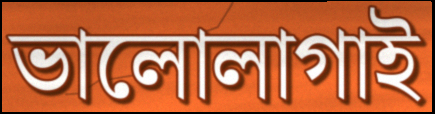
ভালোলাগাই